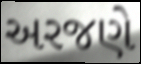
અરજણે